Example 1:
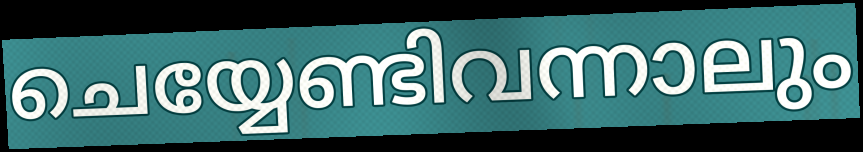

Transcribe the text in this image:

ചെയ്യേണ്ടിവന്നാലും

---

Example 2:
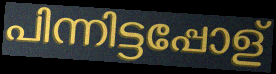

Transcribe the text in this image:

പിന്നിട്ടപ്പോള്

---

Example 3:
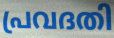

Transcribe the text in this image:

പ്രവദതി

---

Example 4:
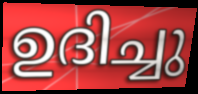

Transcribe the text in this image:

ഉദിച്ചു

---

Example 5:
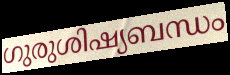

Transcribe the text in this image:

ഗുരുശിഷ്യബന്ധം